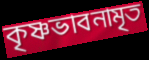
কৃষ্ণভাবনামৃত